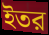
ইতর